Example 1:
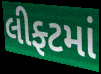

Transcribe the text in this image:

લીફ્ટમાં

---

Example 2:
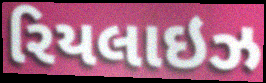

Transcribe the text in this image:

રિયલાઇઝ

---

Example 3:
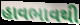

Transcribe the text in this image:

હાવભાવથી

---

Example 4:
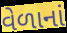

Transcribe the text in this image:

વેળાનાં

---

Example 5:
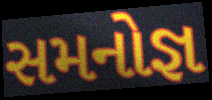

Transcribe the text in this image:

સમનોજ્ઞ